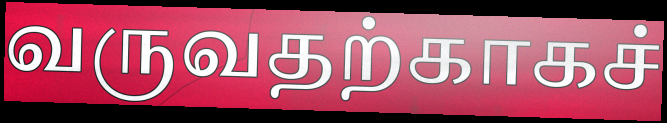
வருவதற்காகச்